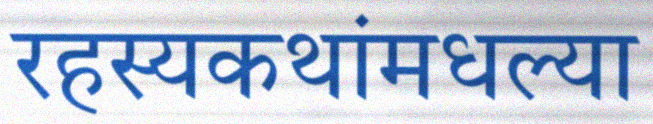
रहस्यकथांमधल्या